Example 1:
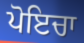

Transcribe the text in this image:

ਪੋਇਚਾ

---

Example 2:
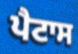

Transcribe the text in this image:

ਪੈਟਾਸ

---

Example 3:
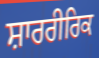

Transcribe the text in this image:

ਸ਼ਾਰਰੀਰਿਕ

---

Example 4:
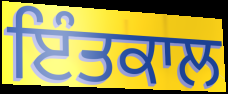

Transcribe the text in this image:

ਇੰਤਕਾਲ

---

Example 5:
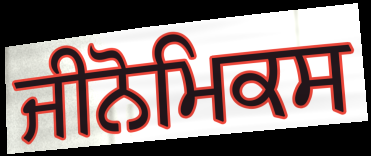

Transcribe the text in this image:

ਜੀਨੋਮਿਕਸ